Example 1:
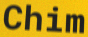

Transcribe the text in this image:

Chim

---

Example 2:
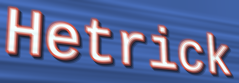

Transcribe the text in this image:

Hetrick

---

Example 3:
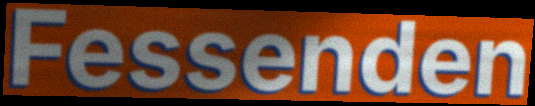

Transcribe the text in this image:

Fessenden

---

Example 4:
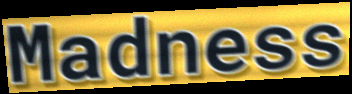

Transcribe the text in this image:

Madness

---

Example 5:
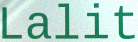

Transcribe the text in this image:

Lalit